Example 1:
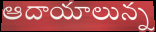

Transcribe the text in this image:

ఆదాయాలున్న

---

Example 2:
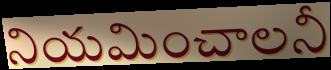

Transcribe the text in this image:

నియమించాలనీ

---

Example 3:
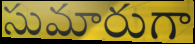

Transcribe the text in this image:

సుమారుగా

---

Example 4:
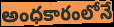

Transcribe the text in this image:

అంధకారంలోనే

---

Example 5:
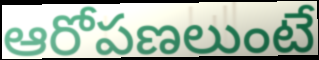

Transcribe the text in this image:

ఆరోపణలుంటే